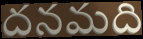
దనమది